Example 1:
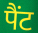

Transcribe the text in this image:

पैंट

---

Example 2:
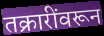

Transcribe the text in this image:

तक्रारींवरून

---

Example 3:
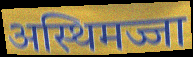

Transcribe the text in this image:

अस्थिमज्जा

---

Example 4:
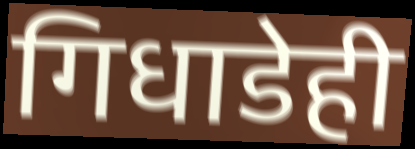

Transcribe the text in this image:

गिधाडेही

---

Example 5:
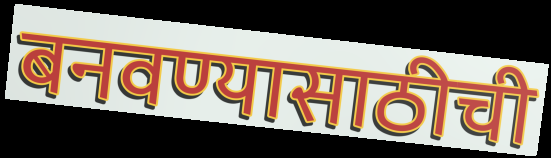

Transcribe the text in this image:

बनवण्यासाठीची